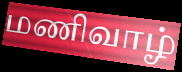
மணிவாழ்